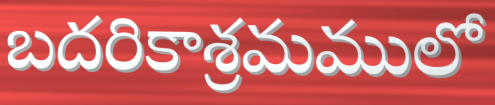
బదరికాశ్రమములో